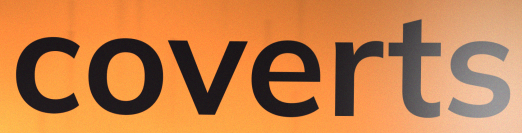
coverts